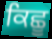
ਕਿਛੂ